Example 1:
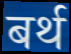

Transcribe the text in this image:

बर्थ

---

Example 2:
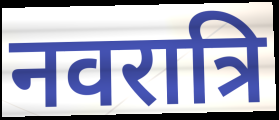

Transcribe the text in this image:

नवरात्रि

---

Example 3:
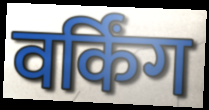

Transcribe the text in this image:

वर्किंग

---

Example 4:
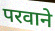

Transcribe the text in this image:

परवाने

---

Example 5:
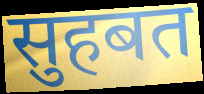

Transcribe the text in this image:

सुहबत